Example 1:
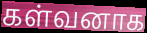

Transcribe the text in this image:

கள்வனாக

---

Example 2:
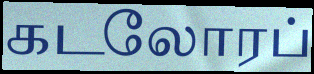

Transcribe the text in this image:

கடலோரப்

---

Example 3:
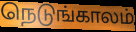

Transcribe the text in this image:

நெடுங்காலம்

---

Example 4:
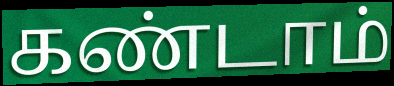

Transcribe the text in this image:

கண்டாம்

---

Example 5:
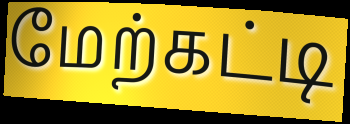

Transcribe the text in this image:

மேற்கட்டி